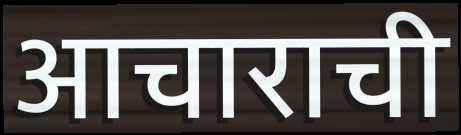
आचाराची